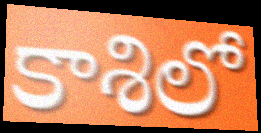
కాశిలో